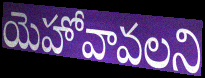
యెహోవావలని